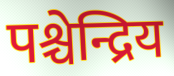
पश्चेन्द्रिय